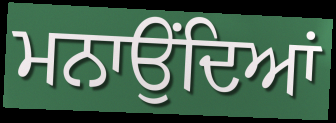
ਮਨਾਉਂਦਿਆਂ